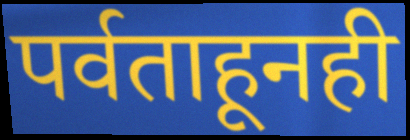
पर्वताहूनही